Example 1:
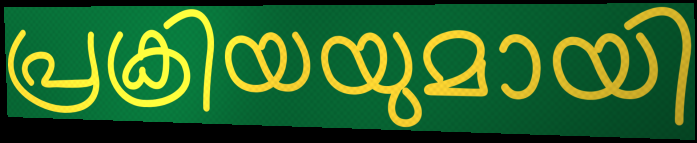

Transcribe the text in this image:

പ്രക്രിയയുമായി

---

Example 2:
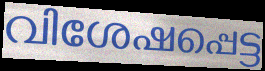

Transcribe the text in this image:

വിശേഷപ്പെട്ട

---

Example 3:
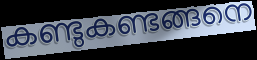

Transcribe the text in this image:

കണ്ടുകണ്ടങ്ങനെ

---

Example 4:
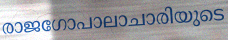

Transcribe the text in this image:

രാജഗോപാലാചാരിയുടെ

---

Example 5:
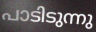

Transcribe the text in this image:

പാടിടുന്നു